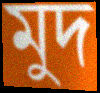
মুদ